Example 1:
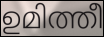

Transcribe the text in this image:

ഉമിത്തീ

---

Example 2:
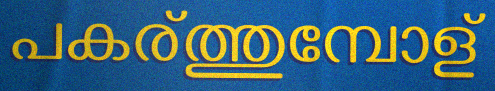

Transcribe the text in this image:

പകര്ത്തുമ്പോള്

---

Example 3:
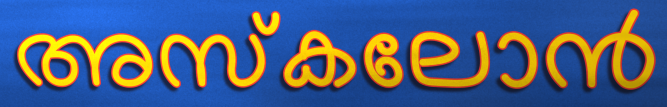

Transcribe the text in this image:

അസ്കലോൻ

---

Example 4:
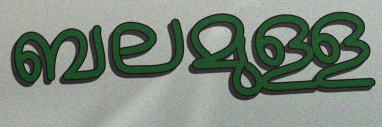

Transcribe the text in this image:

ബലമുള്ള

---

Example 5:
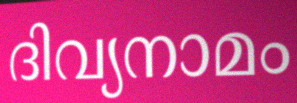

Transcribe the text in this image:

ദിവ്യനാമം